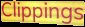
Clippings